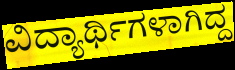
ವಿದ್ಯಾರ್ಥಿಗಳಾಗಿದ್ದ